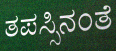
ತಪಸ್ಸಿನಂತೆ